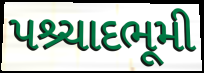
પશ્ર્ચાદભૂમી